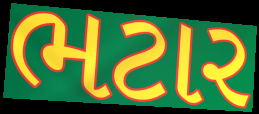
ભટાર